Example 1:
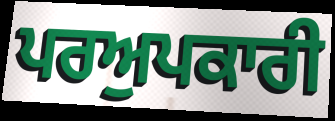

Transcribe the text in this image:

ਪਰਅੁਪਕਾਰੀ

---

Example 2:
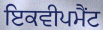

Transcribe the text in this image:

ਇਕਵੀਪਮੈਂਟ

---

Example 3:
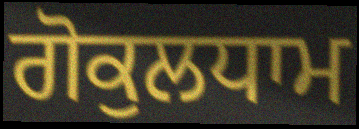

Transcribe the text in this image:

ਗੋਕੁਲਧਾਮ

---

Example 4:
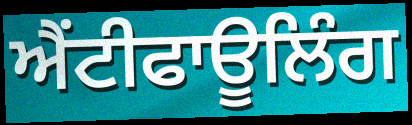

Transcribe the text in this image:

ਐਂਟੀਫਾਊਲਿੰਗ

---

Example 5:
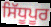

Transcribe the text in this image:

ਸਿੱਧੂਪੂਰ